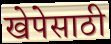
खेपेसाठी